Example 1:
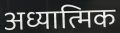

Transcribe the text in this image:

अध्यात्मिक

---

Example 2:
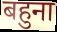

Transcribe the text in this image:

बहुना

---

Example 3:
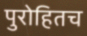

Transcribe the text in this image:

पुरोहितच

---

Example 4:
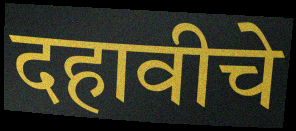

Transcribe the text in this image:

दहावीचे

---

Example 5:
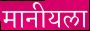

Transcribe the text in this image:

मानीयला